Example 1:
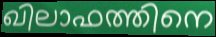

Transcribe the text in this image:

ഖിലാഫത്തിനെ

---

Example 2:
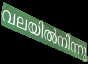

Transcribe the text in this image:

വലയിൽനിന്നു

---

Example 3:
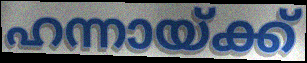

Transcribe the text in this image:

ഹന്നായ്ക്ക്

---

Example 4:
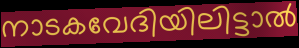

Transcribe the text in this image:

നാടകവേദിയിലിട്ടാൽ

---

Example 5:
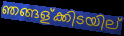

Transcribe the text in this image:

ഞങ്ങള്ക്കിടയില്